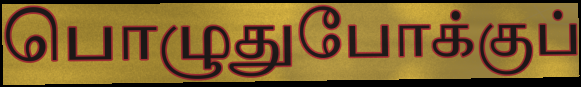
பொழுதுபோக்குப்